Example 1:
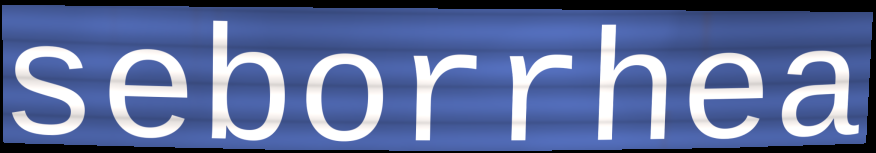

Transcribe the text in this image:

seborrhea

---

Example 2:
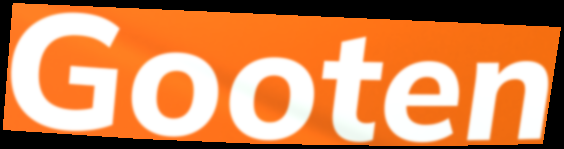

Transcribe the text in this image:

Gooten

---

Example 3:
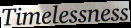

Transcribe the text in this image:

Timelessness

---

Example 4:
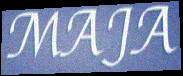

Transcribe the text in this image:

MAJA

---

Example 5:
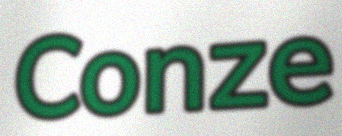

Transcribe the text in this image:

Conze